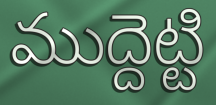
ముద్దెట్టి